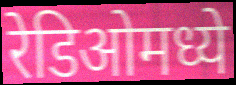
रेडिओमध्ये